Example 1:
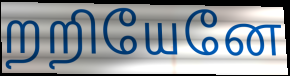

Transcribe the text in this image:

றறியேனே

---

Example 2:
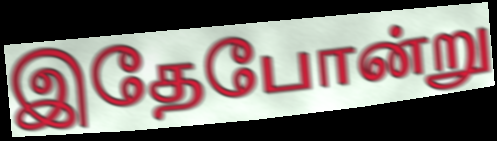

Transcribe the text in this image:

இதேபோன்று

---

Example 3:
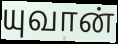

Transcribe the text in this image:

யுவான்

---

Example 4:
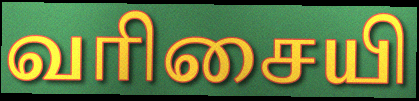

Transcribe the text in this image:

வரிசையி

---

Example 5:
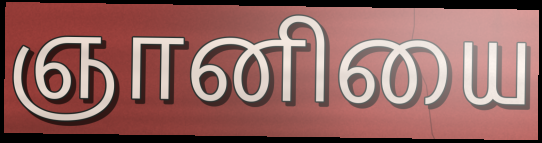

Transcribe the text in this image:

ஞானியை